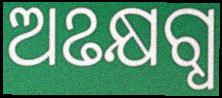
ଅଌକ୍ଷଗ୍ଧ